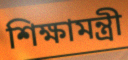
শিক্ষামন্ত্রী